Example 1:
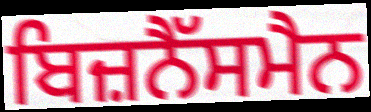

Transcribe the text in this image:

ਬਿਜ਼ਨੈੱਸਮੈਨ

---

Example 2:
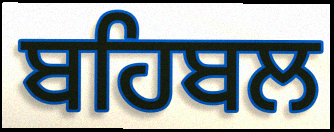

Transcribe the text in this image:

ਬਹਿਬਲ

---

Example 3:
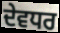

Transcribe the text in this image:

ਦੇਵਧਰ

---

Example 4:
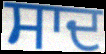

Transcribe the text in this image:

ਸਾਦ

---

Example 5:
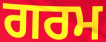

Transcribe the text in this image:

ਗਰਮ